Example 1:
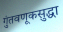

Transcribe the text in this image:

गुंतवणूकसुद्धा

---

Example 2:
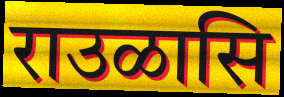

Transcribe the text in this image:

राउळासि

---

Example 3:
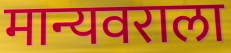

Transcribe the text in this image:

मान्यवराला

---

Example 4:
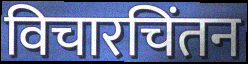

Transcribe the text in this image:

विचारचिंतन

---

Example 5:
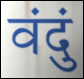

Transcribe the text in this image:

वंदुं